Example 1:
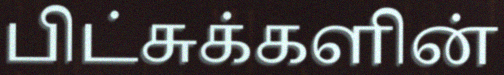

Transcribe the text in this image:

பிட்சுக்களின்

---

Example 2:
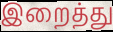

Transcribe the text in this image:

இறைத்து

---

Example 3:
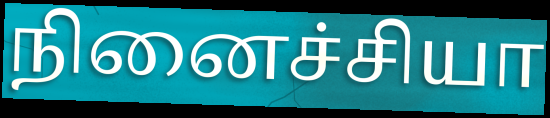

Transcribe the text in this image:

நினைச்சியா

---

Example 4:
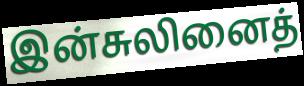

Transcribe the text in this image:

இன்சுலினைத்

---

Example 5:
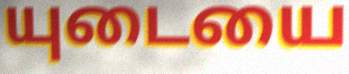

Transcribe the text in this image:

யுடையை